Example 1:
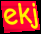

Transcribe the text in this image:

ekj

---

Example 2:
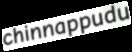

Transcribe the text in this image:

chinnappudu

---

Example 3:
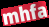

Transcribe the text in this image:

mhfa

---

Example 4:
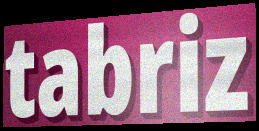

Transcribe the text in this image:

tabriz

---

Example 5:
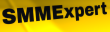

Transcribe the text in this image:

SMMExpert